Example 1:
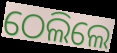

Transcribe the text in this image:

ଠେଲିଲେ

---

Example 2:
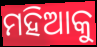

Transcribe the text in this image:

ମହିଆକୁ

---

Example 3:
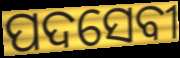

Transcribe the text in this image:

ପଦସେବୀ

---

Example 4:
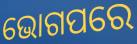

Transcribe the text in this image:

ଭୋଗପରେ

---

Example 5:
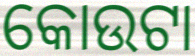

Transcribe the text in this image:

କୋଉଟା